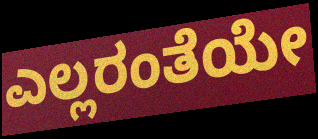
ಎಲ್ಲರಂತೆಯೇ